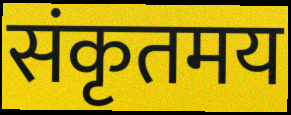
संकृतमय